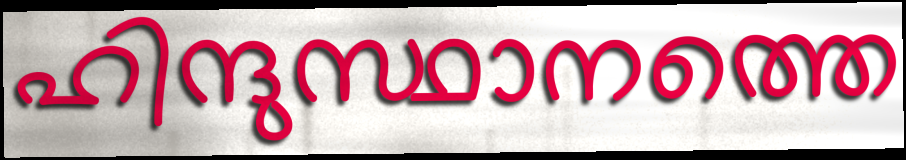
ഹിന്ദുസ്ഥാനത്തെ